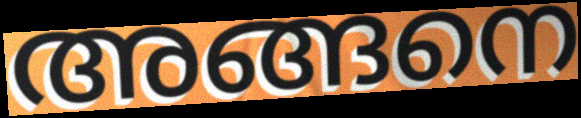
അങ്ങനെ